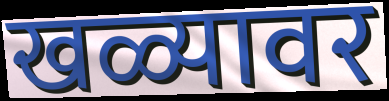
खळ्यावर